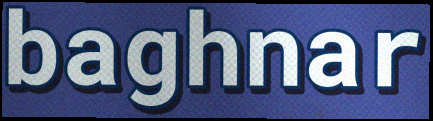
baghnar